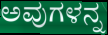
ಅವುಗಳನ್ನ